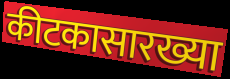
कीटकासारख्या